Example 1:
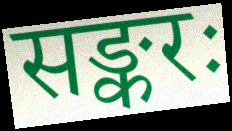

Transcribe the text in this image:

सङ्करः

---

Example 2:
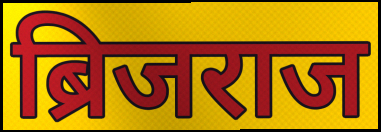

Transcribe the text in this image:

ब्रिजराज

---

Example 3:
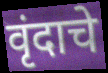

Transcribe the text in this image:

वृंदाचे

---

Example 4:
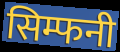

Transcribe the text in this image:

सिम्फनी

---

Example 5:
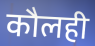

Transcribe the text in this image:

कौलही